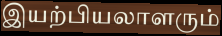
இயற்பியலாளரும்